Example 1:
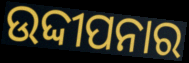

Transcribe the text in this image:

ଉଦ୍ଦୀପନାର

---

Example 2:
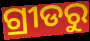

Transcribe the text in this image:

ଗ୍ରୀଡରୁ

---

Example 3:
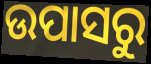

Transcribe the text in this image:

ଉପାସରୁ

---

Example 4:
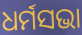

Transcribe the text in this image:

ଧର୍ମସଭା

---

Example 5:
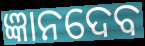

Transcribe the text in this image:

ଜ୍ଞାନଦେବ